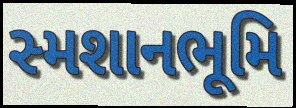
સ્મશાનભૂમિ